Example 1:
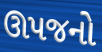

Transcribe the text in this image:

ઊપજનો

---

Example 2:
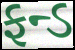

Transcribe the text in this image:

ફન્ડ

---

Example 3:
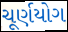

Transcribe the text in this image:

ચૂર્ણયોગ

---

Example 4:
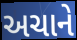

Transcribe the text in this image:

અચાને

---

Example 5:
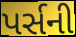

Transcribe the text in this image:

પર્સની